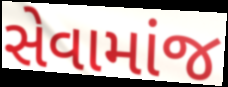
સેવામાંજ